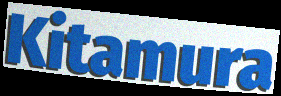
Kitamura